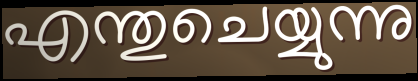
എന്തുചെയ്യുന്നു